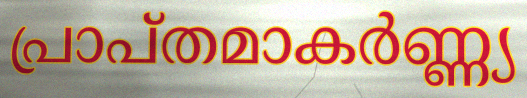
പ്രാപ്തമാകർണ്ണ്യ